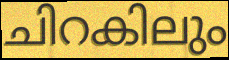
ചിറകിലും